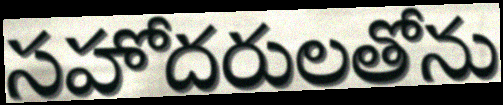
సహోదరులతోను